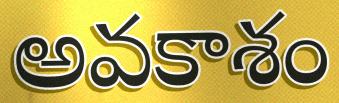
అవకాశం